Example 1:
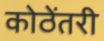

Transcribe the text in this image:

कोठेंतरी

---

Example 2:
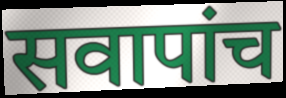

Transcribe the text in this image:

सवापांच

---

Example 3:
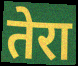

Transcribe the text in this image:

तेरा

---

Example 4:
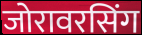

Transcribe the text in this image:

जोरावरसिंग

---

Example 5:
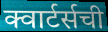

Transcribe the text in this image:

क्वार्टर्सची